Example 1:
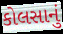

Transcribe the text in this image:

કોલસાનું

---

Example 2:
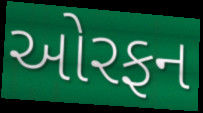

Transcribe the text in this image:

ઓરફન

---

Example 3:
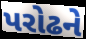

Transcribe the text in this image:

પરોઢને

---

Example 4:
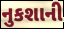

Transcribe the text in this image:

નુકશાની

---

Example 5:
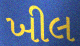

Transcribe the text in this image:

ખીલ